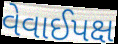
વેવાઈપક્ષ